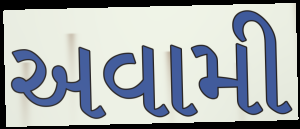
અવામી